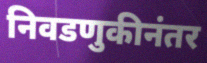
निवडणुकीनंतर